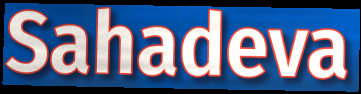
Sahadeva